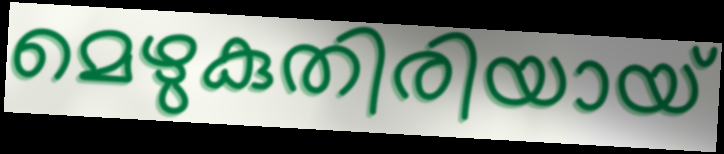
മെഴുകുതിരിയായ്